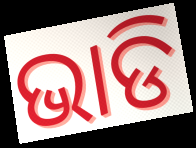
ଭାଡି